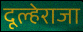
दूल्हेराजा